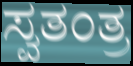
ಸ್ವತಂತ್ರ